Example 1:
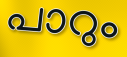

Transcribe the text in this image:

പാറും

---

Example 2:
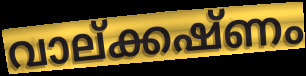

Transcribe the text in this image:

വാല്ക്കഷ്ണം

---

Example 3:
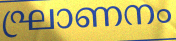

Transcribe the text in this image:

ഘ്രാണനം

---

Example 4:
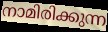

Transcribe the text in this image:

നാമിരിക്കുന്ന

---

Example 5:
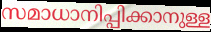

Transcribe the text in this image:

സമാധാനിപ്പിക്കാനുള്ള